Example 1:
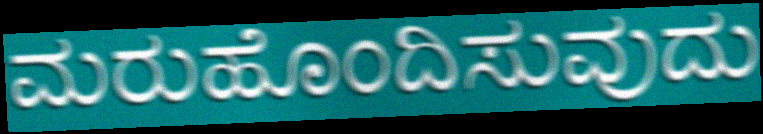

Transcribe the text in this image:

ಮರುಹೊಂದಿಸುವುದು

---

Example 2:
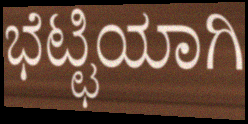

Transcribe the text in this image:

ಭೆಟ್ಟಿಯಾಗಿ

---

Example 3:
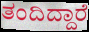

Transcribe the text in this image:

ತಂದಿದ್ದಾರೆ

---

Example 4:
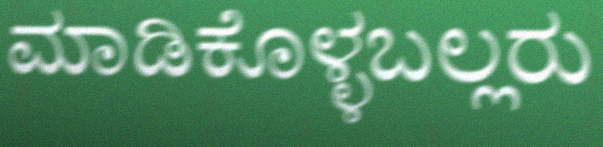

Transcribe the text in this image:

ಮಾಡಿಕೊಳ್ಳಬಲ್ಲರು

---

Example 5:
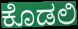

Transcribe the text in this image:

ಕೊಡಲಿ